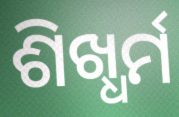
ଶିଖ୍ଧର୍ମ